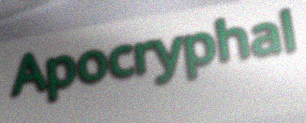
Apocryphal